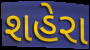
શહેરા